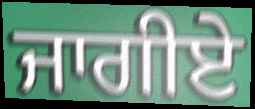
ਜਾਗੀਏ